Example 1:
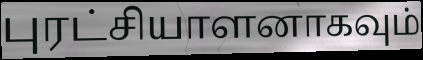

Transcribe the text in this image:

புரட்சியாளனாகவும்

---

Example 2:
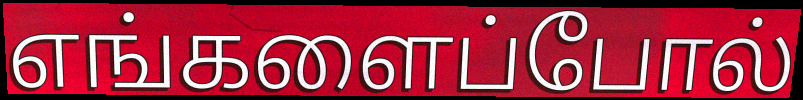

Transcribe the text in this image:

எங்களைப்போல்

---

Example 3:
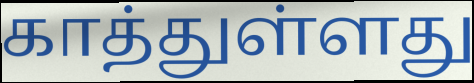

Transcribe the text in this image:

காத்துள்ளது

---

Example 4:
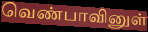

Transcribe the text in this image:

வெண்பாவினுள்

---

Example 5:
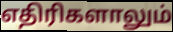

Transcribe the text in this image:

எதிரிகளாலும்